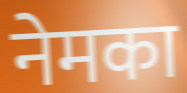
नेमका